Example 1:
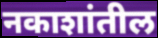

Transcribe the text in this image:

नकाशांतील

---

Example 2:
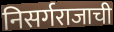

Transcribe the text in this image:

निसर्गराजाची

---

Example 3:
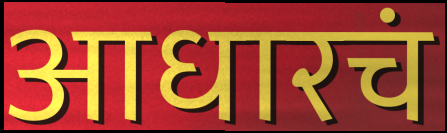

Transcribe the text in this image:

आधारचं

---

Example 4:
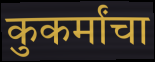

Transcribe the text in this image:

कुकर्मांचा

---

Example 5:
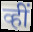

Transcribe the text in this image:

व्हीं